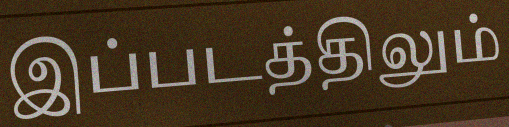
இப்படத்திலும்